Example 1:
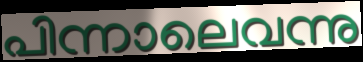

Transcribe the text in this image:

പിന്നാലെവന്നു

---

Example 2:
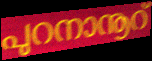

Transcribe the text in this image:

പുറനാനൂറ്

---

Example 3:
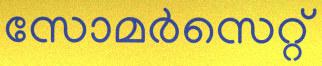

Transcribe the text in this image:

സോമർസെറ്റ്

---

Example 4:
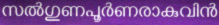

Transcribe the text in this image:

സൽഗുണപൂർണരാകുവിൻ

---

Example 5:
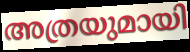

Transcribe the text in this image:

അത്രയുമായി